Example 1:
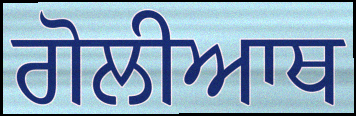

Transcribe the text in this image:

ਗੋਲੀਆਥ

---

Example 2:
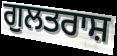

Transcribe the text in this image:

ਗੁਲਤਰਾਸ਼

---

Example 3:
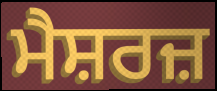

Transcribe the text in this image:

ਮੈਸ਼ਰਜ਼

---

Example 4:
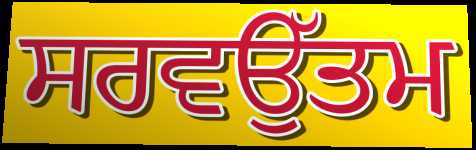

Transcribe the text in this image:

ਸਰਵਉੱਤਮ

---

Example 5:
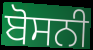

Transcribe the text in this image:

ਬੋਸਨੀ